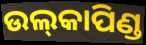
ଉଲ୍‌କାପିଣ୍ଡ